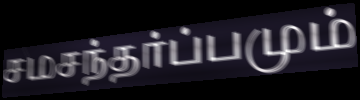
சமசந்தர்ப்பமும்